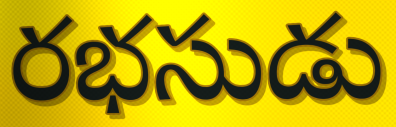
రభసుడు